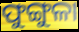
ଫୁଙ୍ଗୁଳା